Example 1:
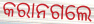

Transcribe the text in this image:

କରାନଗଲେ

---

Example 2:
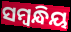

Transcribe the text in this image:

ସମ୍ଵନ୍ଧିୟ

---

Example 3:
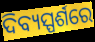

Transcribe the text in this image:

ଦିବ୍ୟସ୍ପର୍ଶରେ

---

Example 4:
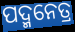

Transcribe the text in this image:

ପଦ୍ମନେତ୍ର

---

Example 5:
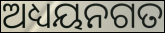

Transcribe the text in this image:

ଅଧ୍ୟୟନଗତ